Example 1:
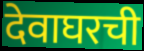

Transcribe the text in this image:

देवाघरची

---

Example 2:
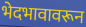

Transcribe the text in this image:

भेदभावावरून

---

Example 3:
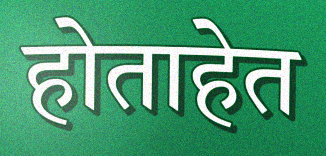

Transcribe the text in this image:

होताहेत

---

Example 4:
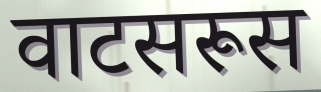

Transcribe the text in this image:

वाटसरूस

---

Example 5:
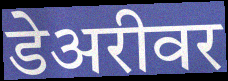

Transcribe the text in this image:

डेअरीवर